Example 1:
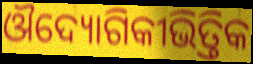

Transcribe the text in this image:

ଔଦ୍ୟୋଗିକୀଭିତ୍ତିକ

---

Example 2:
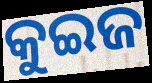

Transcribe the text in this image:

କୁଇଜ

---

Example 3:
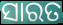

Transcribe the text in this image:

ସାରତ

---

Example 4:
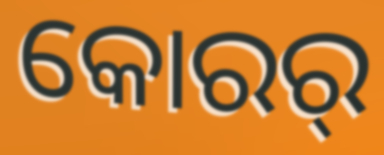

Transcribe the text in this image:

କୋରର୍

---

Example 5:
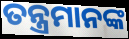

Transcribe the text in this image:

ତନ୍ତ୍ରମାନଙ୍କ